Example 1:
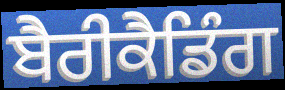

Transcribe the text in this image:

ਬੈਰੀਕੈਡਿੰਗ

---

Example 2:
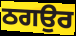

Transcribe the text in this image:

ਠਗਉਰ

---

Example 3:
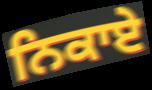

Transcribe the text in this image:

ਨਿਕਾਏ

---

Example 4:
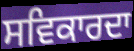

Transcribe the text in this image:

ਸਵਿਕਾਰਦਾ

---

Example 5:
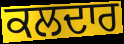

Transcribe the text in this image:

ਕਲਦਾਰ